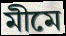
মীমে